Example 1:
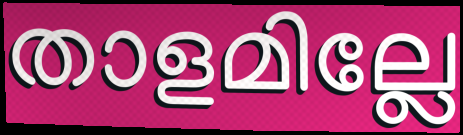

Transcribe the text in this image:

താളമില്ലേ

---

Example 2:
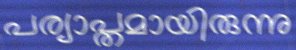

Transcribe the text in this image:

പര്യാപ്തമായിരുന്നു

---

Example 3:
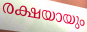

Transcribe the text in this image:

രക്ഷയായും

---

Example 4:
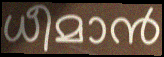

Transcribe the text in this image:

ധീമാൻ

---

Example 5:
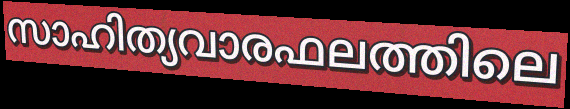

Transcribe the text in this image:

സാഹിത്യവാരഫലത്തിലെ